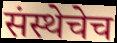
संस्थेचेच